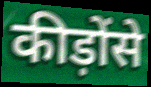
कीड़ोंसे